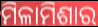
ମିଳାମିଶାର